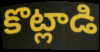
కొట్లాడి